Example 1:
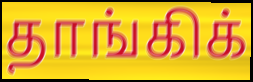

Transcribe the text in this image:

தாங்கிக்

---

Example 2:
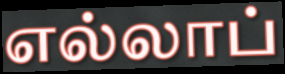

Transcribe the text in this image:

எல்லாப்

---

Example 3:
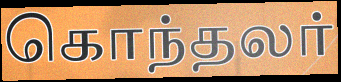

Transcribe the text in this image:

கொந்தலர்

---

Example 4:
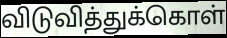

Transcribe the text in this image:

விடுவித்துக்கொள்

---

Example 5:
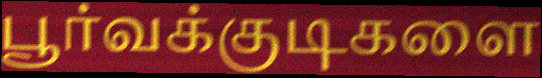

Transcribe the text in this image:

பூர்வக்குடிகளை